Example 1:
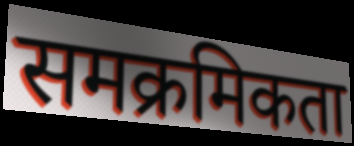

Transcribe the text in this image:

समक्रमिकता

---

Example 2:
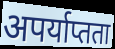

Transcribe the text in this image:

अपर्याप्तता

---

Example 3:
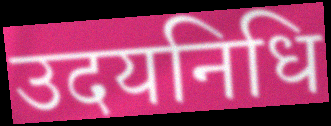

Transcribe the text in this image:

उदयनिधि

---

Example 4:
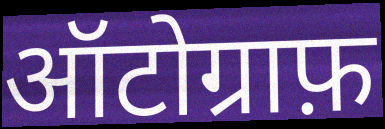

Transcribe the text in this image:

ऑटोग्राफ़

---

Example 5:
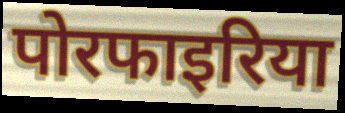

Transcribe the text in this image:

पोरफाइरिया